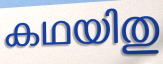
കഥയിതു